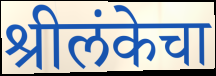
श्रीलंकेचा